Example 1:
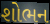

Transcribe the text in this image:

શોભન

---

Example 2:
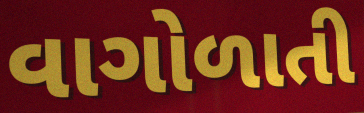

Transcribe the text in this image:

વાગોળાતી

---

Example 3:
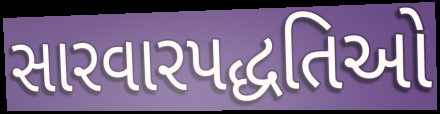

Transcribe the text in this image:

સારવારપદ્ધતિઓ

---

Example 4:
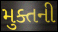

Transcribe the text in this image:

મુક્તની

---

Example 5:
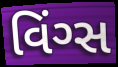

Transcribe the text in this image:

વિંગ્સ